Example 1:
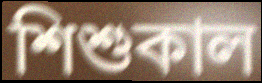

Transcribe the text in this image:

শিশুকাল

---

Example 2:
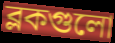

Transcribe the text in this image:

ব্লকগুলো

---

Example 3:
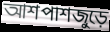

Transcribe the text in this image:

আশপাশজুড়ে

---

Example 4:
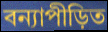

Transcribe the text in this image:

বন্যাপীড়িত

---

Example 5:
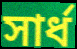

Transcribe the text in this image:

সার্ধ